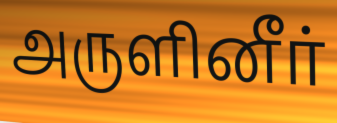
அருளினீர்